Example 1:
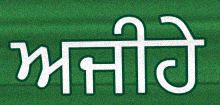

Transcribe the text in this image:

ਅਜੀਹੇ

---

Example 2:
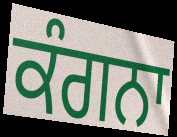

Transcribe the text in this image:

ਕੰਗਨਾ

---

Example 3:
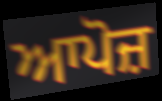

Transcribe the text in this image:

ਆਪੋਜ਼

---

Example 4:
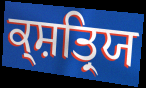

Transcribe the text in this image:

ਕ੍ਸ਼ਤ੍ਰਿਯ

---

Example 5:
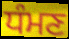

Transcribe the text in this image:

ਧੰਮਣ